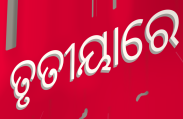
ତୃତୀୟାରେ